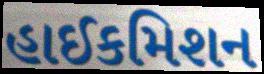
હાઈકમિશન